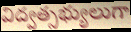
విద్వత్సభ్యులుగా